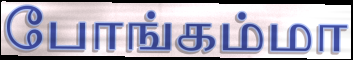
போங்கம்மா